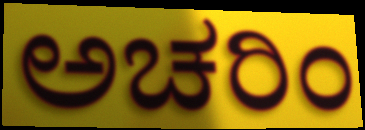
ಅಚರಿಂ